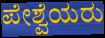
ಪೇಶ್ವೆಯರು